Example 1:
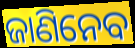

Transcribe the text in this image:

ଜାଣିନେବ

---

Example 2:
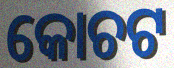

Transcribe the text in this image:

କୋଚଟ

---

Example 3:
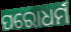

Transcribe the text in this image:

ପରୋଧର୍ମ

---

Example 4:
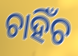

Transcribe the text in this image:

ଚାହିଁଚ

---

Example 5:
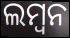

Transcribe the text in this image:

ଲମ୍ବନ